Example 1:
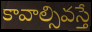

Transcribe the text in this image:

కావాల్సివస్తే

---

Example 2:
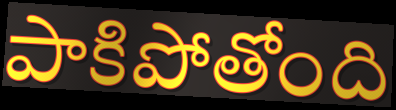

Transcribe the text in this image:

పాకిపోతోంది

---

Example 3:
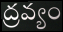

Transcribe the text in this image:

ద్రవ్యం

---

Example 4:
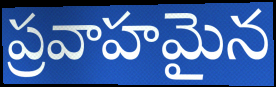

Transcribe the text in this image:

ప్రవాహమైన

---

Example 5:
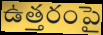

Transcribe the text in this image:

ఉత్తరంపై